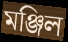
মঞ্জিল